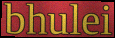
bhulei